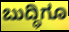
ಬುದ್ಧಿಗೂ